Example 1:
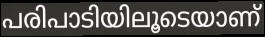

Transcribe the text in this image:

പരിപാടിയിലൂടെയാണ്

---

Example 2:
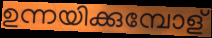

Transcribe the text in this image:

ഉന്നയിക്കുമ്പോള്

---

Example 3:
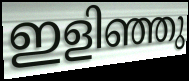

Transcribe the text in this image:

ഇളിഞ്ഞു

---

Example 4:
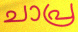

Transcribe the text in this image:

ചാപ്ര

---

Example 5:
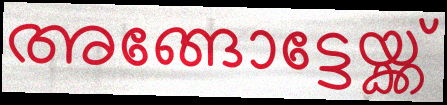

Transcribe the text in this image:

അങ്ങോട്ടേയ്ക്ക്